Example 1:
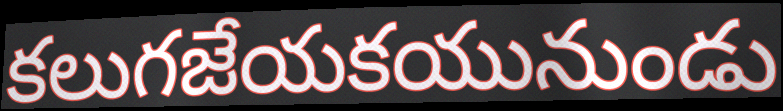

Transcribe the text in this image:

కలుగజేయకయునుండు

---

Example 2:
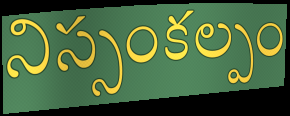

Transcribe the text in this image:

నిస్సంకల్పం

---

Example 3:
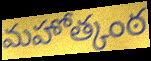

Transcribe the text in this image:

మహోత్కంఠ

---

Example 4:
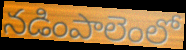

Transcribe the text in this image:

నడింపాలెంలో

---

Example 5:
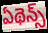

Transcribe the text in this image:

ఏథెన్స్